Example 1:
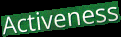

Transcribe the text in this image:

Activeness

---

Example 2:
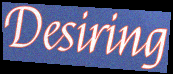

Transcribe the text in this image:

Desiring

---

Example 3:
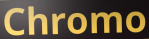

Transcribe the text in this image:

Chromo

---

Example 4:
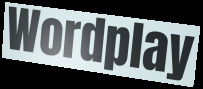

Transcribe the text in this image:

Wordplay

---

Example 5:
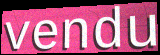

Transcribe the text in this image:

vendu